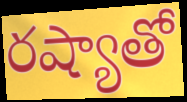
రష్యాతో